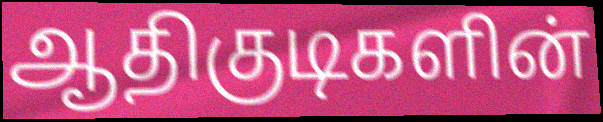
ஆதிகுடிகளின்